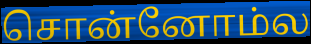
சொன்னோம்ல